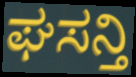
ಘಸನ್ತಿ